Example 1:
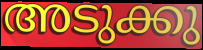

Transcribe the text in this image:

അടുക്കു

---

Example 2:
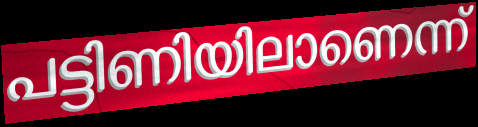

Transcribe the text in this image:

പട്ടിണിയിലാണെന്ന്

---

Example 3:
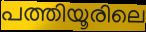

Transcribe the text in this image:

പത്തിയൂരിലെ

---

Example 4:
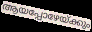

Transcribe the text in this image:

ആയപ്പോഴേയ്ക്കും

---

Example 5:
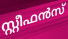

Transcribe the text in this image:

സ്റ്റീഫൻസ്